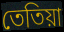
তেতিয়া